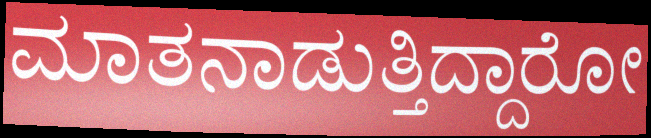
ಮಾತನಾಡುತ್ತಿದ್ದಾರೋ